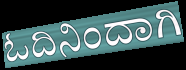
ಓದಿನಿಂದಾಗಿ